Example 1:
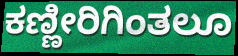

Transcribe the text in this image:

ಕಣ್ಣೀರಿಗಿಂತಲೂ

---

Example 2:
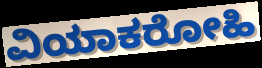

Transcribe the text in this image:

ವಿಯಾಕರೋಹಿ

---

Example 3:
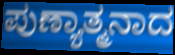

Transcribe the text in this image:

ಪುಣ್ಯಾತ್ಮನಾದ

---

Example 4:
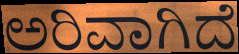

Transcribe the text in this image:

ಅರಿವಾಗಿದೆ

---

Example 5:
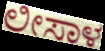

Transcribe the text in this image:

ಲೀಸಾಳ